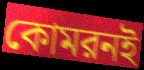
কোমরনই